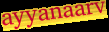
ayyanaarv